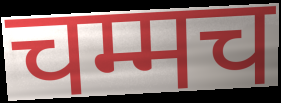
चम्मच